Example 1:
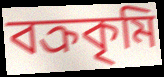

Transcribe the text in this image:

বক্রকৃমি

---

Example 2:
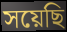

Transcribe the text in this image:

সয়েছি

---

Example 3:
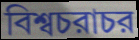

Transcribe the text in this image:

বিশ্বচরাচর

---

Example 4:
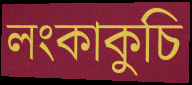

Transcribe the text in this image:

লংকাকুচি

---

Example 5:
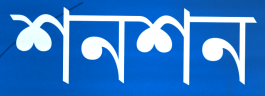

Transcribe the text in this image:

শনশন